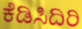
ಕೆಡಿಸಿದಿರಿ